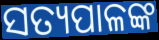
ସତ୍ୟପାଳଙ୍କ